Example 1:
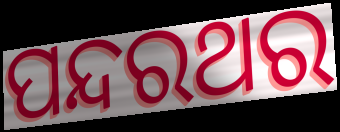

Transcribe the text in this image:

ପନ୍ଦରଥର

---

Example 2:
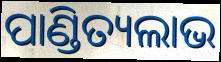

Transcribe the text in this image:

ପାଣ୍ଡିତ୍ୟଲାଭ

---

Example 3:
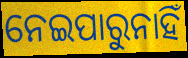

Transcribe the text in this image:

ନେଇପାରୁନାହିଁ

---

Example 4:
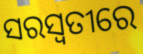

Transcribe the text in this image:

ସରସ୍ୱତୀରେ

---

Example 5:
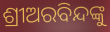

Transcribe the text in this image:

ଶ୍ରୀଅରବିନ୍ଦଙ୍କୁ